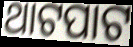
ଥାଟପାଟ